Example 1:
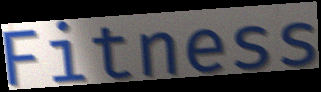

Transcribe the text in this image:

Fitness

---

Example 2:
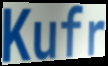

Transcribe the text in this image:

Kufr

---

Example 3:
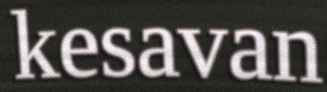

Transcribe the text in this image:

kesavan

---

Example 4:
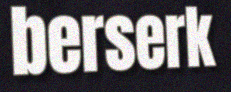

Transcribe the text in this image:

berserk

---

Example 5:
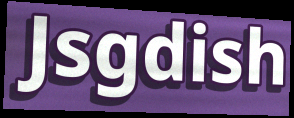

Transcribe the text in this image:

Jsgdish